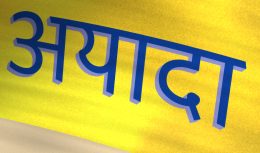
अयादा